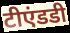
टीएंडडी